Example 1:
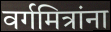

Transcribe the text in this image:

वर्गमित्रांना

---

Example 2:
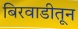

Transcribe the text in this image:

बिरवाडीतून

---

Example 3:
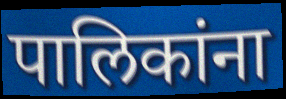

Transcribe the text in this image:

पालिकांना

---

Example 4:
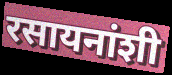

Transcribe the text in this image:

रसायनांशी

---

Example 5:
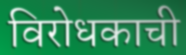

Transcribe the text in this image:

विरोधकाची